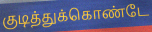
குடித்துக்கொண்டே